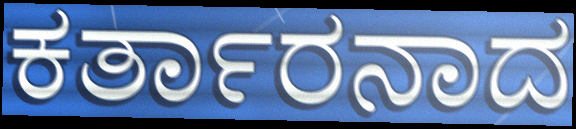
ಕರ್ತಾರನಾದ